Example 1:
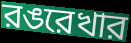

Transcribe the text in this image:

রঙরেখার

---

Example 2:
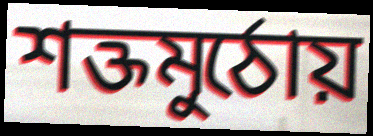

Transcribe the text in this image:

শক্তমুঠোয়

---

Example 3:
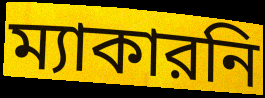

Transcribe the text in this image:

ম্যাকারনি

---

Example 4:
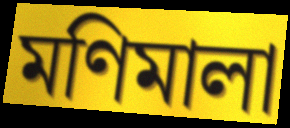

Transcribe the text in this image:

মণিমালা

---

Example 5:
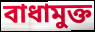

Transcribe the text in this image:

বাধামুক্ত